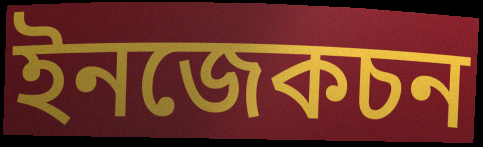
ইনজেকচন